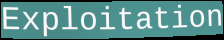
Exploitation